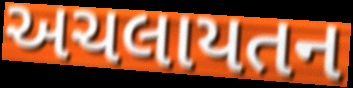
અચલાયતન